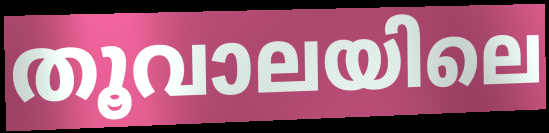
തൂവാലയിലെ